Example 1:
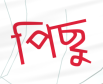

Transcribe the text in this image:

পিছু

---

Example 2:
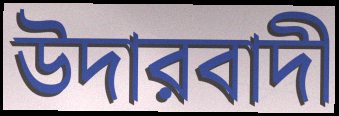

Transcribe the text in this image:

উদারবাদী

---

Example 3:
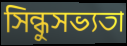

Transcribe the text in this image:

সিন্ধুসভ্যতা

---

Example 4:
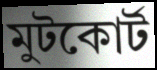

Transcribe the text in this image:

মুটকোর্ট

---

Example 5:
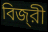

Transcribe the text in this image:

বিজ্‌রী